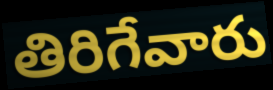
తిరిగేవారు